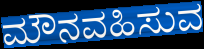
ಮೌನವಹಿಸುವ